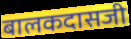
बालकदासजी